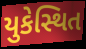
યુકેસ્થિત